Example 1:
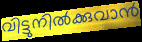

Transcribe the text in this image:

വിട്ടുനിൽക്കുവാൻ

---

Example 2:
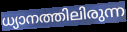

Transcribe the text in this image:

ധ്യാനത്തിലിരുന്ന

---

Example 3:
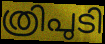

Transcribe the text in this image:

ത്രിപുടി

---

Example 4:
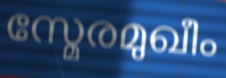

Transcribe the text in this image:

സ്മേരമുഖീം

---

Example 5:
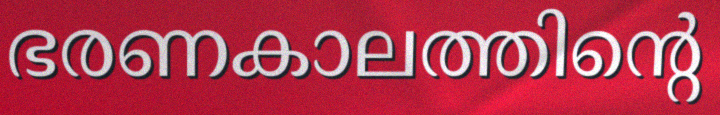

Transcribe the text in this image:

ഭരണകാലത്തിന്റെ